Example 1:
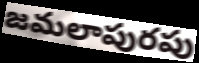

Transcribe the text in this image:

జమలాపురపు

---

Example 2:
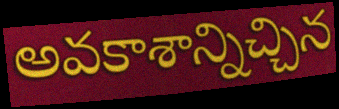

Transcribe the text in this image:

అవకాశాన్నిచ్చిన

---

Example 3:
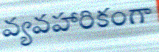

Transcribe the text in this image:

వ్యవహారికంగా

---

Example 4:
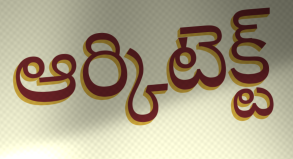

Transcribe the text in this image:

ఆర్కిటెక్ట్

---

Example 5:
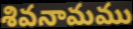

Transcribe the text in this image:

శివనామము